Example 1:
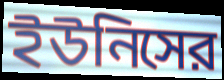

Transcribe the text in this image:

ইউনিসের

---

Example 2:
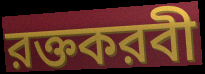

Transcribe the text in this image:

রক্তকরবী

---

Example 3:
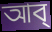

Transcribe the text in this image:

আব্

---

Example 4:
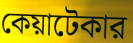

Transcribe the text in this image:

কেয়াটেকার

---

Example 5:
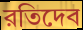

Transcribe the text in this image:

রতিদেব